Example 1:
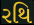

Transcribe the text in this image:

રથિ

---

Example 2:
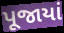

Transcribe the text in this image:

પૂજાયાં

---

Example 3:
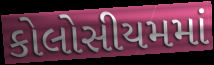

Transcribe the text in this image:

કોલોસીયમમાં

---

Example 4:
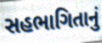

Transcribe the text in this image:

સહભાગિતાનું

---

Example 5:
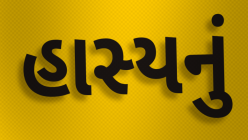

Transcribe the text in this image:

હાસ્યનું